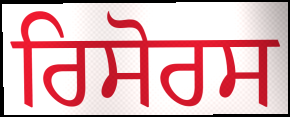
ਰਿਸੋਰਸ